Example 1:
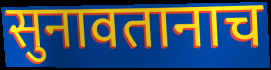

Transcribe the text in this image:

सुनावतानाच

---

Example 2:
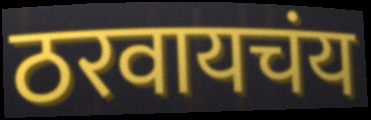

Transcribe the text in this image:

ठरवायचंय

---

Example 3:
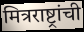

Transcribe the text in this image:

मित्रराष्ट्रांची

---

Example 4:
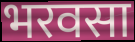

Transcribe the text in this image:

भरवसा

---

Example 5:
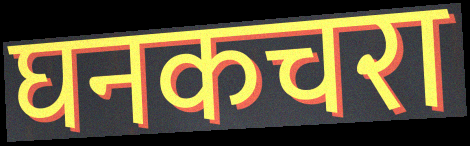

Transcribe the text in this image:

घनकचरा